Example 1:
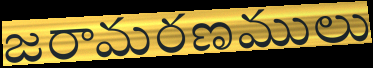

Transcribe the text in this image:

జరామరణములు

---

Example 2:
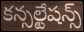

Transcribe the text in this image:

కన్సల్టేషన్స్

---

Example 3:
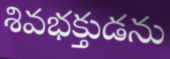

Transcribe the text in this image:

శివభక్తుడను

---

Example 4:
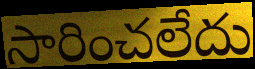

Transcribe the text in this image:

సారించలేదు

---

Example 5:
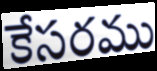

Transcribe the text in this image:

కేసరము